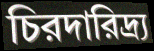
চিরদারিদ্র্য